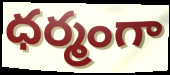
ధర్మంగా